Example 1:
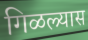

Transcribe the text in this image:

गिळल्यास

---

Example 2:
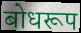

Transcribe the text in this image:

बोधरूप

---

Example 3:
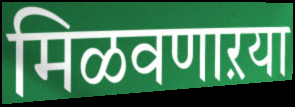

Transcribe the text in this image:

मिळवणाऱया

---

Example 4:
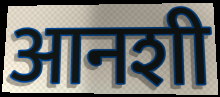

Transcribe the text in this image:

आनशी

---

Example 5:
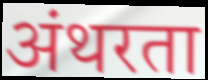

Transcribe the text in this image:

अंथरता